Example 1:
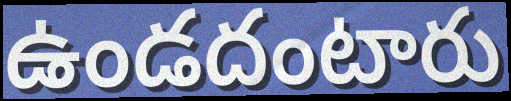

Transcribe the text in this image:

ఉండదంటారు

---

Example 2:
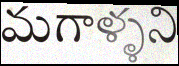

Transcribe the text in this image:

మగాళ్ళని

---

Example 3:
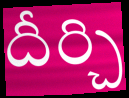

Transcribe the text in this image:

దీర్చి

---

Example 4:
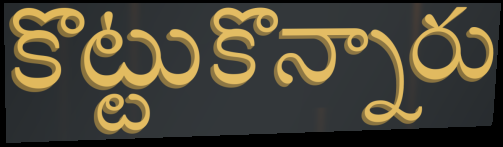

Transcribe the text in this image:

కొట్టుకొన్నారు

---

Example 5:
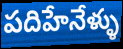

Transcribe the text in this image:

పదిహేనేళ్ళు